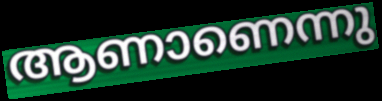
ആണാണെന്നു